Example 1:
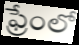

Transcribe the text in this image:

ఫ్రేంలో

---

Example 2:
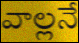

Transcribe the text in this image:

వాల్లనే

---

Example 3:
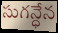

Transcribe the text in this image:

సుగన్ధేన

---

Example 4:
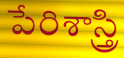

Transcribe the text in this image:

పేరిశాస్త్రి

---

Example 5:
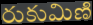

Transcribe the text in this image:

రుకుమిణి